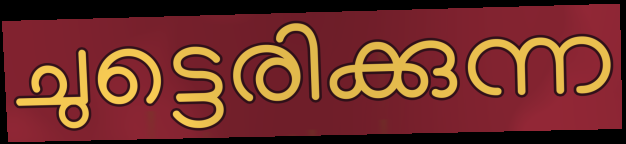
ചുട്ടെരിക്കുന്ന